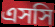
এসসি